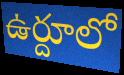
ఉర్దూలో